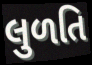
લુળતિ